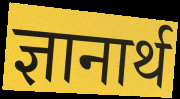
ज्ञानार्थ